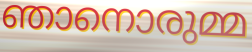
ഞാനൊരുമ്മ